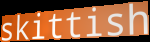
skittish